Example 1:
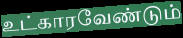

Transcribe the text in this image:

உட்காரவேண்டும்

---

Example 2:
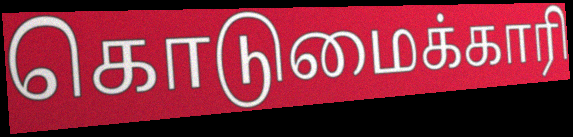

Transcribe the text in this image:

கொடுமைக்காரி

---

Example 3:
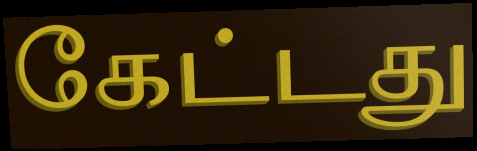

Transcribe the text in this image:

கேட்டது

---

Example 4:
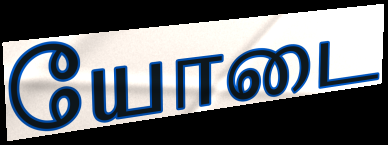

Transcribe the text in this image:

யோடை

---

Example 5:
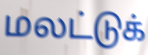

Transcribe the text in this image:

மலட்டுக்